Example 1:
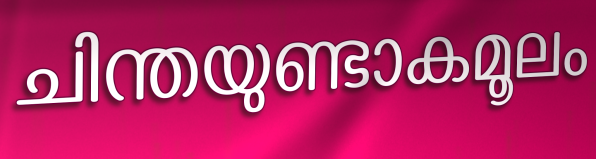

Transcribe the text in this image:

ചിന്തയുണ്ടാകമൂലം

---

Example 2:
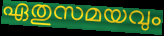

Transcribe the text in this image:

ഏതുസമയവും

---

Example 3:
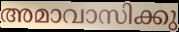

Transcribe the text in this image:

അമാവാസിക്കു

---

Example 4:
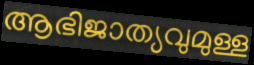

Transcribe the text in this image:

ആഭിജാത്യവുമുള്ള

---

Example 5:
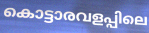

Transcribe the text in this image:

കൊട്ടാരവളപ്പിലെ